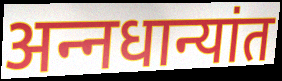
अन्नधान्यांत